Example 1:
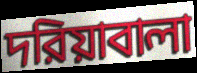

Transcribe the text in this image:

দরিয়াবালা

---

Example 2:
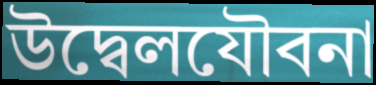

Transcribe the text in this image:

উদ্বেলযৌবনা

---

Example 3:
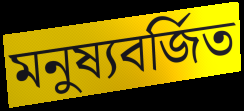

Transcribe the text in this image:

মনুষ্যবর্জিত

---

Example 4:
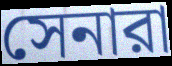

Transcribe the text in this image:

সেনারা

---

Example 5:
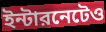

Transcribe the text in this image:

ইন্টারনেটেও